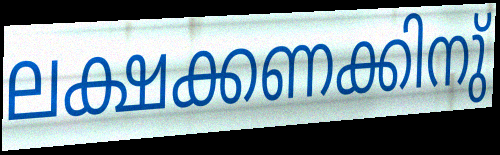
ലക്ഷക്കണക്കിനു്